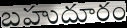
బహుదూరం